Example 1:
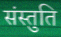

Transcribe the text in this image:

संस्तुति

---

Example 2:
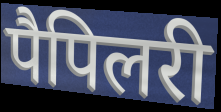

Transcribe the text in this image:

पैपिलरी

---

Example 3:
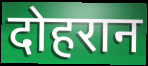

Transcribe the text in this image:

दोहरान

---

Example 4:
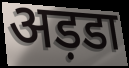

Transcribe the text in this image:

अड़डा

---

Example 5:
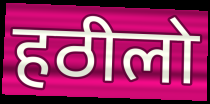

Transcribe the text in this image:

हठीलो